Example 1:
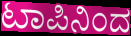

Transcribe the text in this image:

ಟಾಪಿನಿಂದ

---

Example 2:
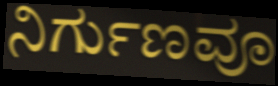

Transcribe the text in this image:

ನಿರ್ಗುಣವೂ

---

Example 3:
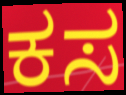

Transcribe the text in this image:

ಕಸ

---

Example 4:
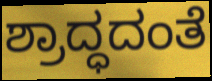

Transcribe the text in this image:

ಶ್ರಾದ್ಧದಂತೆ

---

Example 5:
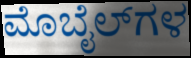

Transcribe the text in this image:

ಮೊಬೈಲ್‌ಗಳ